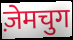
ज़ेमचुग